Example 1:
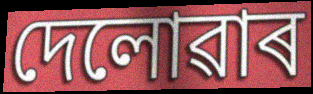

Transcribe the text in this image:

দেলোৱাৰ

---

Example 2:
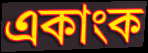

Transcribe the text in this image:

একাংক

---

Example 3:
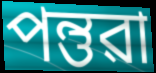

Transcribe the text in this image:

পন্তুৱা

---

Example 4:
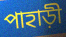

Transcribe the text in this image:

পাহাড়ী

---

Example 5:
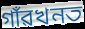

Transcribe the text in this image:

গাঁৱখনত